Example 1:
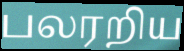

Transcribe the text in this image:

பலரறிய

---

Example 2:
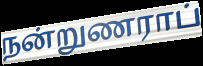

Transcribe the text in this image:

நன்றுணராப்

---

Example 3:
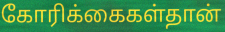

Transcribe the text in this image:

கோரிக்கைகள்தான்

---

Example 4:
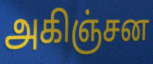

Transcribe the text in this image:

அகிஞ்சன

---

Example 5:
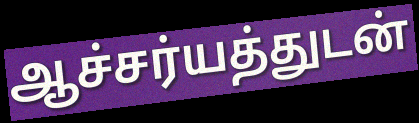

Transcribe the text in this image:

ஆச்சர்யத்துடன்